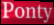
Ponty